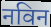
नविन